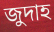
জুদাহ